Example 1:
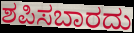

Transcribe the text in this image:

ಶಪಿಸಬಾರದು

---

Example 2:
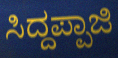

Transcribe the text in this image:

ಸಿದ್ದಪ್ಪಾಜಿ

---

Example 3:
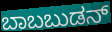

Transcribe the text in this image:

ಬಾಬಬುಡನ್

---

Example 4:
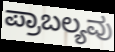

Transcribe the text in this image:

ಪ್ರಾಬಲ್ಯವು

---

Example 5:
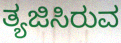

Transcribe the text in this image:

ತ್ಯಜಿಸಿರುವ